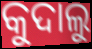
କୁଦାଲୁ